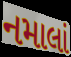
નમાલાં